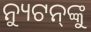
ନ୍ୟୁଟନ୍‌ଙ୍କୁ